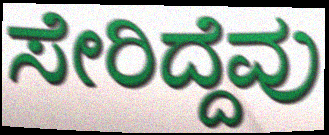
ಸೇರಿದ್ದೆವು